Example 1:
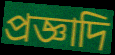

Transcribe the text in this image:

প্রজ্ঞাদি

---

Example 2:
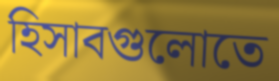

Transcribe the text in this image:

হিসাবগুলোতে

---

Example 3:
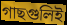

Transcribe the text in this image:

গাছগুলিই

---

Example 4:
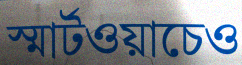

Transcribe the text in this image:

স্মার্টওয়াচেও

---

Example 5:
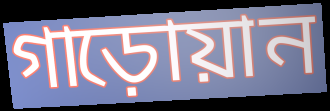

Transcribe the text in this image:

গাড়োয়ান